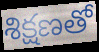
శిక్షణతో